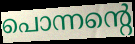
പൊന്നന്റെ